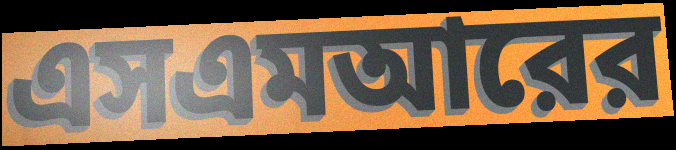
এসএমআরের